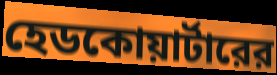
হেডকোয়ার্টারের